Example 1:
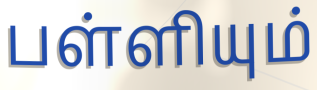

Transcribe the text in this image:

பள்ளியும்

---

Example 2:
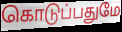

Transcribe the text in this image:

கொடுப்பதுமே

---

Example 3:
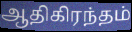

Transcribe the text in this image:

ஆதிகிரந்தம்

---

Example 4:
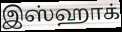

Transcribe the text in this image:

இஸ்ஹாக்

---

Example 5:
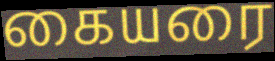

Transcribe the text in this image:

கையரை